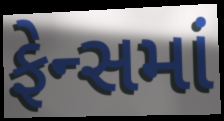
ફેન્સમાં